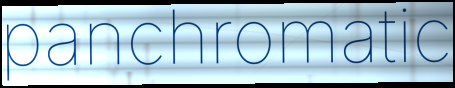
panchromatic